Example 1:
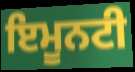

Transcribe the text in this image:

ਇਮੂਨਟੀ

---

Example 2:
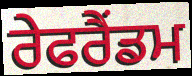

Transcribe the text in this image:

ਰੇਫਰੈਂਡਮ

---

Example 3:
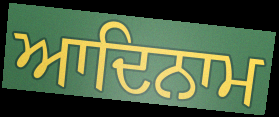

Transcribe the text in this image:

ਆਦਿਨਾਮ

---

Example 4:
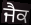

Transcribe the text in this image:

ਜੈਕ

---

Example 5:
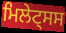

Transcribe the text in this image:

ਮਿਲੇਟ੍ਸਸ